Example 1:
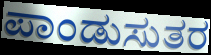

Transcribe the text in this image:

ಪಾಂಡುಸುತರ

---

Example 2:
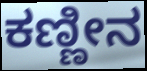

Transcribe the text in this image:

ಕಣ್ಣೀನ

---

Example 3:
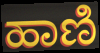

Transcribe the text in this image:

ಹಾಣಿ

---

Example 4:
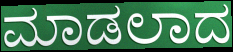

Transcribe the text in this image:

ಮಾಡಲಾದ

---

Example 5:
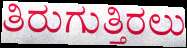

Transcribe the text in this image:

ತಿರುಗುತ್ತಿರಲು